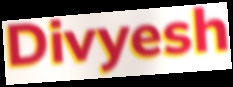
Divyesh